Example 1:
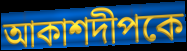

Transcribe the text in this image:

আকাশদীপকে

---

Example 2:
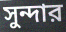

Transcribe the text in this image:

সুন্দার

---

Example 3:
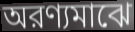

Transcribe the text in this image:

অরণ্যমাঝে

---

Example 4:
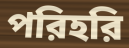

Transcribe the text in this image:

পরিহরি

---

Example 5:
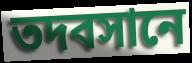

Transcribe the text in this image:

তদবসানে